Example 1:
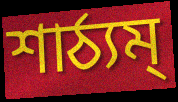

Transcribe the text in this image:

শাঠ্যম্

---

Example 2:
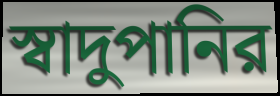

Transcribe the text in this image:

স্বাদুপানির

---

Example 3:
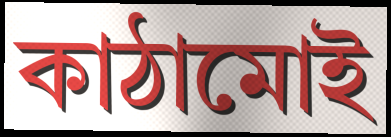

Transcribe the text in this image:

কাঠামোই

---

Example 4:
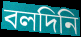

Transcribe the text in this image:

বলদিনি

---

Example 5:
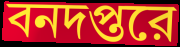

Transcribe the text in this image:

বনদপ্তরে